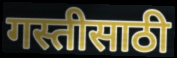
गस्तीसाठी